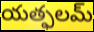
యత్ఫలమ్